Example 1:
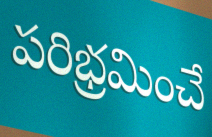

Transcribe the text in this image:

పరిభ్రమించే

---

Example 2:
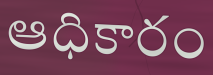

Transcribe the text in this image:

ఆధికారం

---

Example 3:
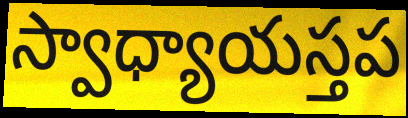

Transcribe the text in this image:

స్వాధ్యాయస్తప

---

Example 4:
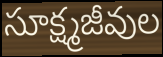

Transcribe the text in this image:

సూక్ష్మజీవుల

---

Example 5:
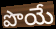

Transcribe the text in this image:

పొయే